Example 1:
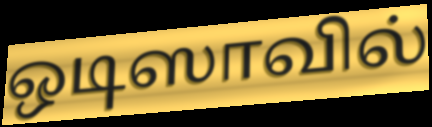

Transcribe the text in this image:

ஒடிஸாவில்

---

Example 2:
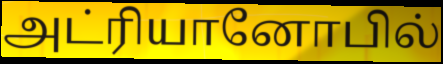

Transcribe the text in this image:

அட்ரியானோபில்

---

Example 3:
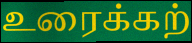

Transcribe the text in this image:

உரைக்கற்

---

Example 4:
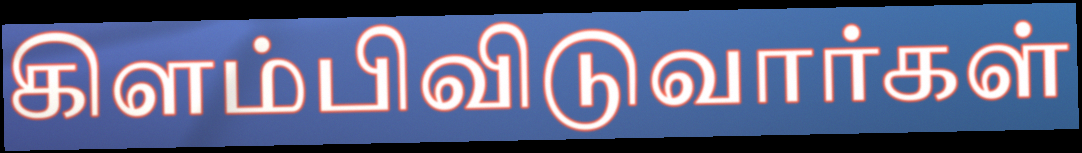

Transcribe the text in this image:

கிளம்பிவிடுவார்கள்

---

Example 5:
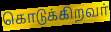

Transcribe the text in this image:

கொடுக்கிறவர்